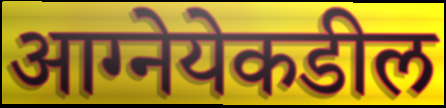
आग्नेयेकडील